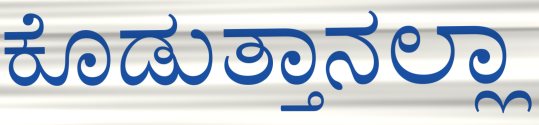
ಕೊಡುತ್ತಾನಲ್ಲಾ